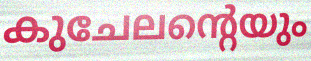
കുചേലന്റെയും